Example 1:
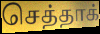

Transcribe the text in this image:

செத்தாக்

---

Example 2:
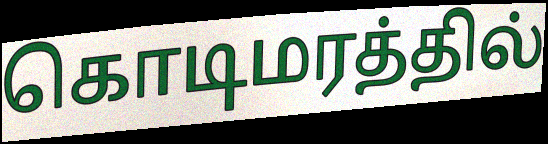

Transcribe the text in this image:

கொடிமரத்தில்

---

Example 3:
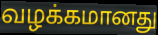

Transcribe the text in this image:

வழக்கமானது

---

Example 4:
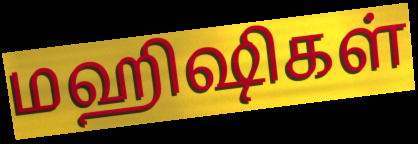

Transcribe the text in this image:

மஹிஷிகள்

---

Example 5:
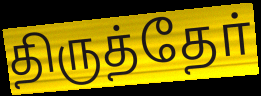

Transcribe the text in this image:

திருத்தேர்